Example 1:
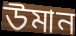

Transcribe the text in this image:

উমান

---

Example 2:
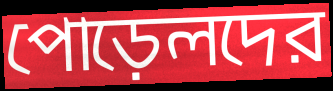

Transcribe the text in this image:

পোড়েলদের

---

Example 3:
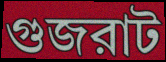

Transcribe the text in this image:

গুজরাট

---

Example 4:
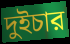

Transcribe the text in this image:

দুইচার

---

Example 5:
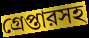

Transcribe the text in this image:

গ্রেপ্তারসহ